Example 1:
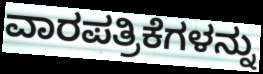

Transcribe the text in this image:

ವಾರಪತ್ರಿಕೆಗಳನ್ನು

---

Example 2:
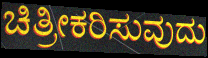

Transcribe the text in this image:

ಚಿತ್ರೀಕರಿಸುವುದು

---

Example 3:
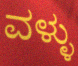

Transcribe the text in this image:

ವಳ್ಳು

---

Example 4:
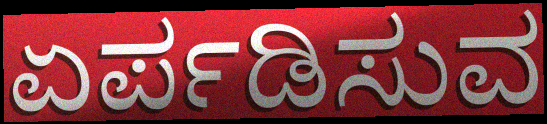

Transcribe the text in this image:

ಏರ್ಪಡಿಸುವ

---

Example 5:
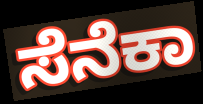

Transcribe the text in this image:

ಸೆನೆಕಾ